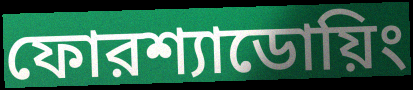
ফোরশ্যাডোয়িং